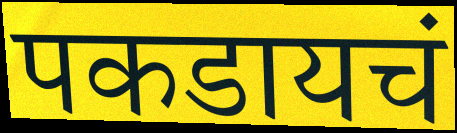
पकडायचं